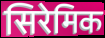
सिरेमिक